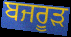
ਬਜਰੂੜ